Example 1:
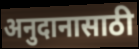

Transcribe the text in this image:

अनुदानासाठी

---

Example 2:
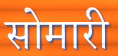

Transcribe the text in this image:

सोमारी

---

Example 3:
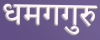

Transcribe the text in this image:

धमगगुरु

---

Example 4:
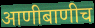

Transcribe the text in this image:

आणीबाणीच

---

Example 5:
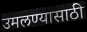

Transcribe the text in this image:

उमलण्यासाठी